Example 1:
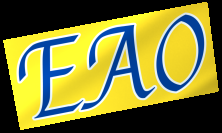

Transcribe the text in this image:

EAO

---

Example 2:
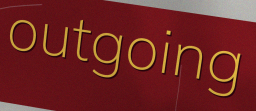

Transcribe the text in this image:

outgoing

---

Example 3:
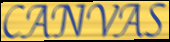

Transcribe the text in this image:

CANVAS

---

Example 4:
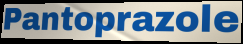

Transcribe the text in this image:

Pantoprazole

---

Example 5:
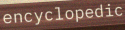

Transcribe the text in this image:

encyclopedic